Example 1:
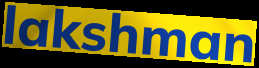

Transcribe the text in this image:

lakshman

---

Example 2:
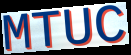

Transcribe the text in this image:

MTUC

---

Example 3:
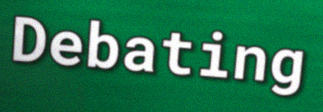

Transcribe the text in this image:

Debating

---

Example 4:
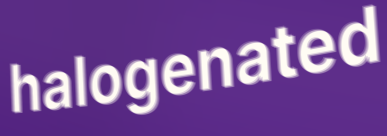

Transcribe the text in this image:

halogenated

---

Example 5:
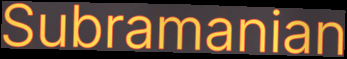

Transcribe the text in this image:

Subramanian